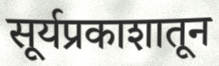
सूर्यप्रकाशातून